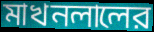
মাখনলালের